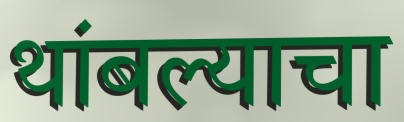
थांबल्याचा